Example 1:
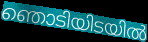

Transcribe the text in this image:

ഞൊടിയിടയിൽ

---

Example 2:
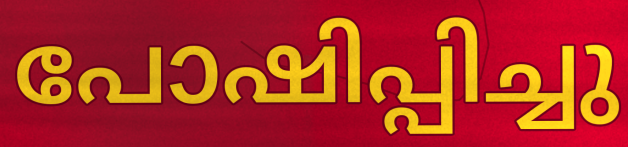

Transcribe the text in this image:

പോഷിപ്പിച്ചു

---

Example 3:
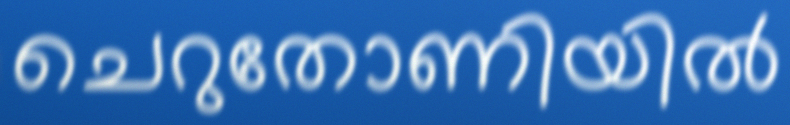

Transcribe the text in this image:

ചെറുതോണിയിൽ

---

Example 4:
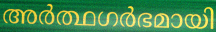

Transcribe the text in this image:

അർത്ഥഗർഭമായി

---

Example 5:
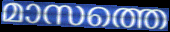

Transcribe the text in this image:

മാസത്തെ